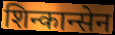
शिन्कान्सेन